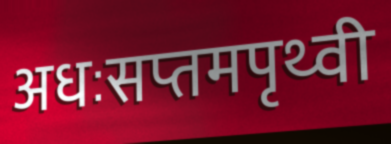
अधःसप्तमपृथ्वी